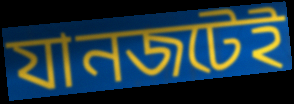
যানজটেই